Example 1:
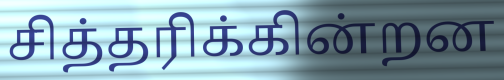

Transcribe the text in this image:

சித்தரிக்கின்றன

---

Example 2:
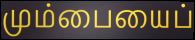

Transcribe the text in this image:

மும்பையைப்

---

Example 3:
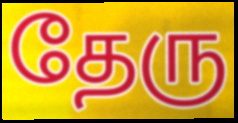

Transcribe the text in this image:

தேரு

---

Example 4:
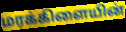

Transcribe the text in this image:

மரக்கிளையின்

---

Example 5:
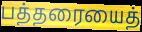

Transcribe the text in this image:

பத்தரையைத்